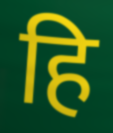
हि